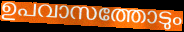
ഉപവാസത്തോടും